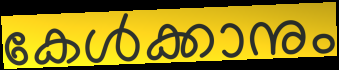
കേൾക്കാനും